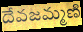
దేవజమ్మణి